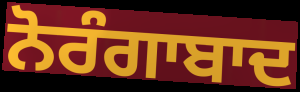
ਨੋਰੰਗਾਬਾਦ